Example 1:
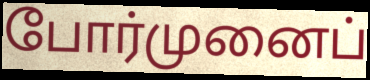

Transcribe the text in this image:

போர்முனைப்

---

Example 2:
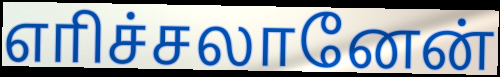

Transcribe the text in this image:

எரிச்சலானேன்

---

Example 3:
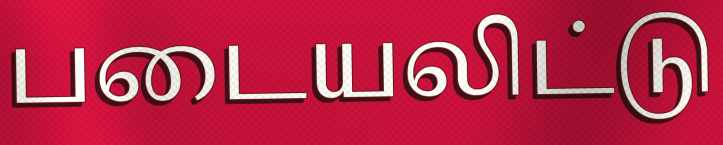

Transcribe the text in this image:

படையலிட்டு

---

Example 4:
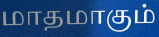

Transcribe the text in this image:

மாதமாகும்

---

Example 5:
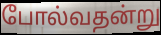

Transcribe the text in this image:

போல்வதன்று